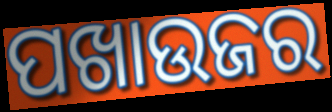
ପଖାଉଜର